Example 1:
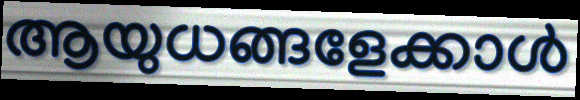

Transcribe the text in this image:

ആയുധങ്ങളേക്കാൾ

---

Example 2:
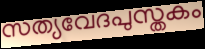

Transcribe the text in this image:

സത്യവേദപുസ്തകം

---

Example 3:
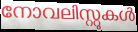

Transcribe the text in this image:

നോവലിസ്റ്റുകൾ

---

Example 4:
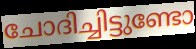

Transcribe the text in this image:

ചോദിച്ചിട്ടുണ്ടോ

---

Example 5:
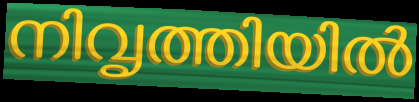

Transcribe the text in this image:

നിവൃത്തിയിൽ